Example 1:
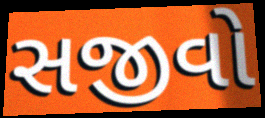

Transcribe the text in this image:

સજીવો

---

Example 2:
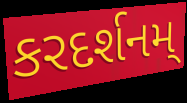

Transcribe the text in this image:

કરદર્શનમ્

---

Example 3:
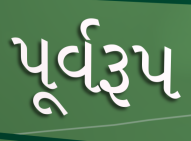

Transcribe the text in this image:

પૂર્વરૂપ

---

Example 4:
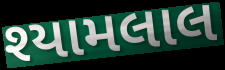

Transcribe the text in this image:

શ્યામલાલ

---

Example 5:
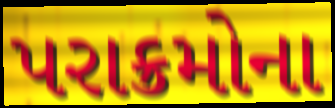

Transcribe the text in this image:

પરાક્રમોના